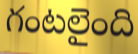
గంటలైంది